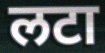
लटा